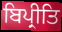
ਬਿਪ੍ਰੀਤਿ